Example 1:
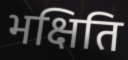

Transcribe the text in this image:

भक्षिति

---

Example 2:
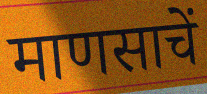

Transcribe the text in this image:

माणसाचें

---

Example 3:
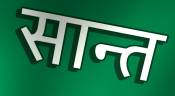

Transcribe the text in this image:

सान्त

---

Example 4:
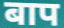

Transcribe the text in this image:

बाप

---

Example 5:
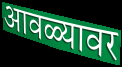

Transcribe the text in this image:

आवळ्यावर